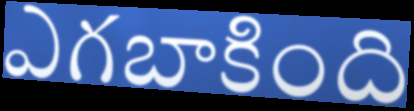
ఎగబాకింది